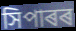
সিপাৰৰ